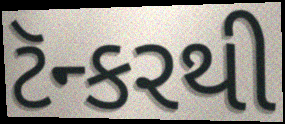
ટૅન્કરથી